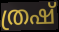
ത്രഷ്